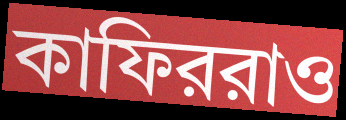
কাফিররাও